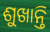
ଶୁଖାନ୍ତି